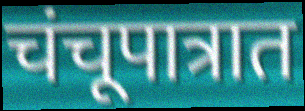
चंचूपात्रात